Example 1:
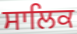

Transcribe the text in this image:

ਸਾਲਿਕ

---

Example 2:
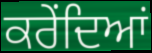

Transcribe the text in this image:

ਕਰੇਂਦਿਆਂ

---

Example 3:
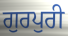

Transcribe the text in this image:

ਗੁਰਪੁਰੀ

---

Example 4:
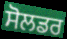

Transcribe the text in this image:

ਸੋਲਡਰ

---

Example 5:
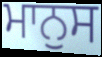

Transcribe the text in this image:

ਮਾਨੁਸ